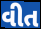
વીત